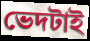
ভেদটাই